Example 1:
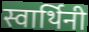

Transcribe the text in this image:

स्वार्थिनी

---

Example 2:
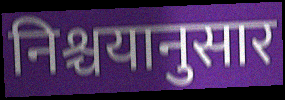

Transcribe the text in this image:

निश्चयानुसार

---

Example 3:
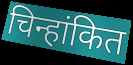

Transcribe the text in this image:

चिन्हांकित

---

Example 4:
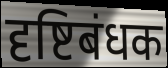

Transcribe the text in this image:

दृष्टिबंधक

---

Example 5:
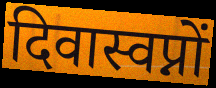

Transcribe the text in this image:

दिवास्वप्नों